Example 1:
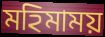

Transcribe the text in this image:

মহিমাময়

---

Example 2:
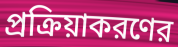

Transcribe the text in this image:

প্রক্রিয়াকরণের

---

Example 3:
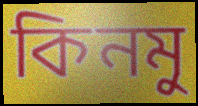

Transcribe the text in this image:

কিনমু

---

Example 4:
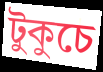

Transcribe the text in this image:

টুকুচে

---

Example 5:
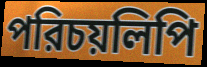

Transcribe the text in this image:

পরিচয়লিপি